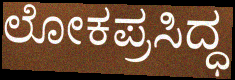
ಲೋಕಪ್ರಸಿದ್ಧ